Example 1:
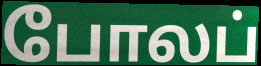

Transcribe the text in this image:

போலப்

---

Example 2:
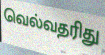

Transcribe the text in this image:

வெல்வதரிது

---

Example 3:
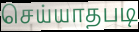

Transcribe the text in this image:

செய்யாதபடி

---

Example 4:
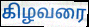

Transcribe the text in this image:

கிழவரை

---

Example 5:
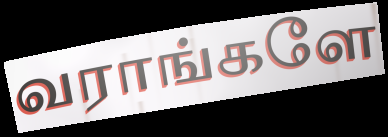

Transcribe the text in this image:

வராங்களே